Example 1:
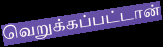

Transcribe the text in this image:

வெறுக்கப்பட்டான்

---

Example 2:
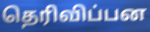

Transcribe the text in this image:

தெரிவிப்பன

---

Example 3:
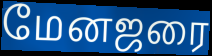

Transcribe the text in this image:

மேனஜரை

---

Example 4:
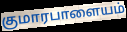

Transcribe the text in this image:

குமாரபாளையம்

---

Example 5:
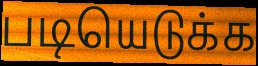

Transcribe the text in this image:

படியெடுக்க